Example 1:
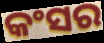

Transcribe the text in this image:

କଂସର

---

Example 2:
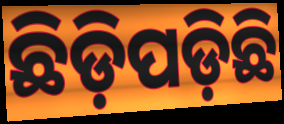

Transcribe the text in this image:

ଛିଡ଼ିପଡ଼ିଛି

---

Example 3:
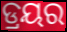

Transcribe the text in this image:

ଡ୍ରୟର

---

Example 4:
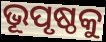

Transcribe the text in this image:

ଭୂପୃଷ୍ଠକୁ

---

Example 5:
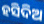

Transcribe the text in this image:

ହସିଦିଅ